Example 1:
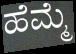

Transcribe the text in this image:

ಹೆಮ್ಮೆ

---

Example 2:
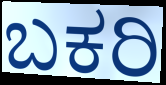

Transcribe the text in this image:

ಬಕರಿ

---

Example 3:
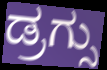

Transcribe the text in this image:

ಡ್ರಗ್ಸು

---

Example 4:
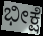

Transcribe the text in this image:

ಭೀಕ್ಷೆ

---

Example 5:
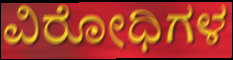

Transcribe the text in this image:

ವಿರೋಧಿಗಳ